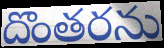
దొంతరను